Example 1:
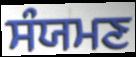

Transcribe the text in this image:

ਸੰਯਮਣ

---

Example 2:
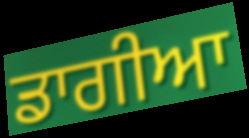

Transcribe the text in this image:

ਡਾਗੀਆ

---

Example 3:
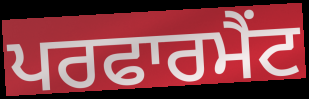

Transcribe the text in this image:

ਪਰਫਾਰਮੈਂਟ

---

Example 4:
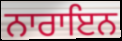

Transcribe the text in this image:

ਨਾਰਾਇਨ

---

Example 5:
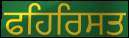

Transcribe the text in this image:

ਫਹਿਰਿਸਤ